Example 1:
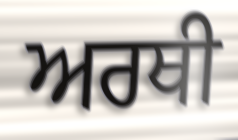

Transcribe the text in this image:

ਅਰਥੀ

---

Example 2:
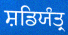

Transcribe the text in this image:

ਸ਼ਡਿਯੰਤ੍ਰ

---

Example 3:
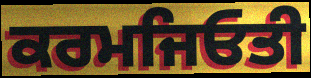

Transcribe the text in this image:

ਕਰਮਜਿਓਤੀ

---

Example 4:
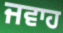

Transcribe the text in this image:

ਜਵਾਹ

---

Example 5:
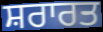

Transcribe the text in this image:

ਸ਼ਰਾਰਤ